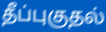
தீப்புகுதல்